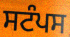
ਸਟੰਪਸ